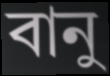
বানু